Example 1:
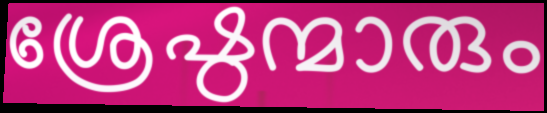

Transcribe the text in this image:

ശ്രേഷ്ഠന്മാരും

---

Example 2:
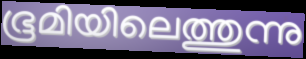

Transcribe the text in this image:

ഭൂമിയിലെത്തുന്നു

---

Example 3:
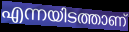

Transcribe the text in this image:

എന്നയിടത്താണ്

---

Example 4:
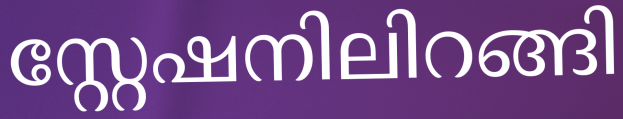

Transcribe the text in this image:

സ്റ്റേഷനിലിറങ്ങി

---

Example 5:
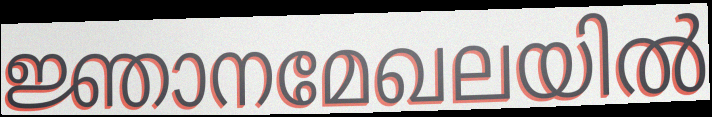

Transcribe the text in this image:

ജ്ഞാനമേഖലയിൽ